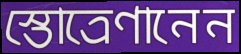
স্তোত্রেণানেন